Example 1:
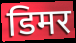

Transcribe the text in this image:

डिमर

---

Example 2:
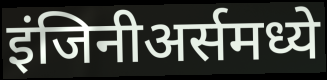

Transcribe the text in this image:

इंजिनीअर्समध्ये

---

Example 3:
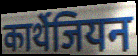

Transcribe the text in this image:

कार्थेजियन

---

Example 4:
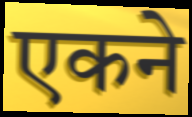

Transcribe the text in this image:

एकने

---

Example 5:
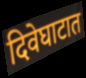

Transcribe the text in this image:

दिवेघाटात